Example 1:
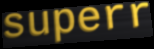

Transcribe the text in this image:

superr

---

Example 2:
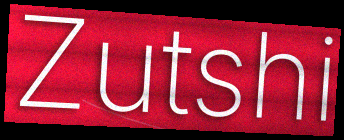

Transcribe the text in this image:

Zutshi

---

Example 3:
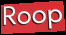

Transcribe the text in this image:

Roop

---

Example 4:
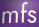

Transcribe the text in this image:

mfs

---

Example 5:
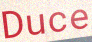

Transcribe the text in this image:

Duce